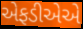
એફડીએએ